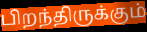
பிறந்திருக்கும்